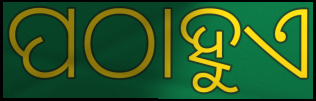
ପଠାହୁଏ